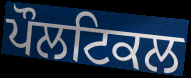
ਪੌਲਟਿਕਲ